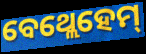
ବେଥ୍ଲେହେମ୍